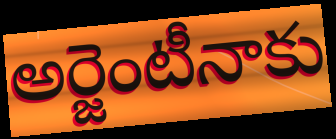
అర్జెంటీనాకు